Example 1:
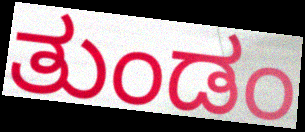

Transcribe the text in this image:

ತುಂಡಂ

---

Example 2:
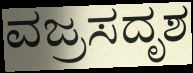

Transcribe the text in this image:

ವಜ್ರಸದೃಶ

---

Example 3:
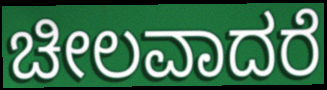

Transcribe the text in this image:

ಚೀಲವಾದರೆ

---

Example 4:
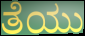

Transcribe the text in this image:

ತೆಯು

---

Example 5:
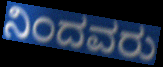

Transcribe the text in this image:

ನಿಂದವರು